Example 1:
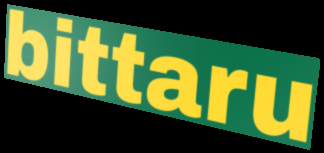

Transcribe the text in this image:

bittaru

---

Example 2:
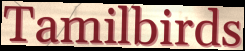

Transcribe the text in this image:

Tamilbirds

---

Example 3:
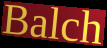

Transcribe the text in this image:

Balch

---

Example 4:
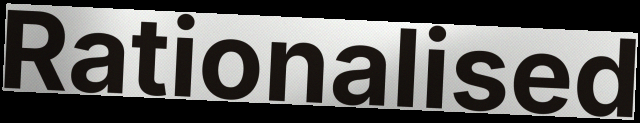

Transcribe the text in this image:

Rationalised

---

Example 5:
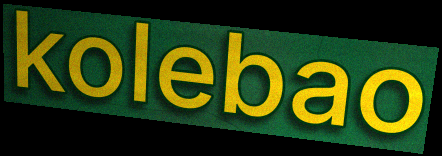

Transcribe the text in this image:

kolebao